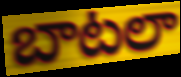
బాటలా